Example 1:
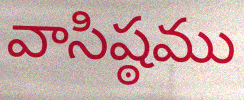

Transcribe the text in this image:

వాసిష్ఠము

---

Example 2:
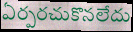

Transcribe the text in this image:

ఏర్పరచుకొనలేదు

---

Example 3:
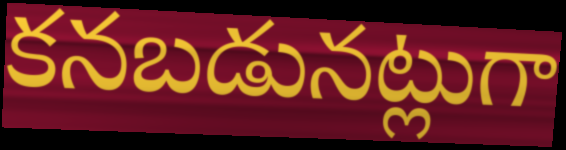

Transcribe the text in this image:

కనబడునట్లుగా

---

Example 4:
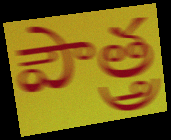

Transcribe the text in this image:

పౌత్త్ర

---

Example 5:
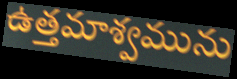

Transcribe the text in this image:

ఉత్తమాశ్వమును